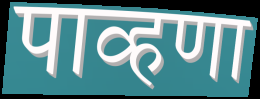
पाव्हणा